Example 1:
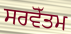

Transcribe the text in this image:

ਸਰਵੋੱਤਮ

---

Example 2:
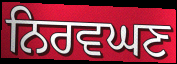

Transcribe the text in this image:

ਨਿਰਵਘਣ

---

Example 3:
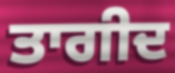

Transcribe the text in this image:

ਤਾਗੀਦ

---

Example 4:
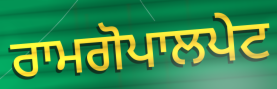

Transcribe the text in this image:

ਰਾਮਗੋਪਾਲਪੇਟ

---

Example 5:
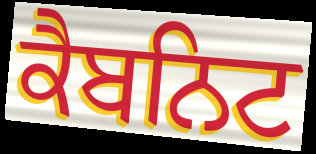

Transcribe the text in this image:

ਕੈਬਨਿਟ